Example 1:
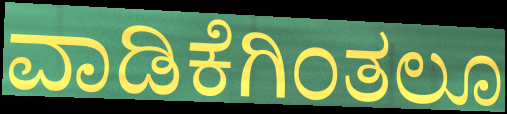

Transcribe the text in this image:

ವಾಡಿಕೆಗಿಂತಲೂ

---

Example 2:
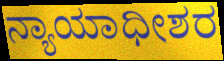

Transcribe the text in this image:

ನ್ಯಾಯಾಧೀಶರ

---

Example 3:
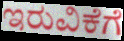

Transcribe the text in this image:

ಇರುವಿಕೆಗೆ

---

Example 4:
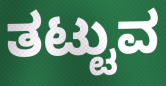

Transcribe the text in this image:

ತಟ್ಟುವ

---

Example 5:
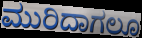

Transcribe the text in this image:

ಮುರಿದಾಗಲೂ